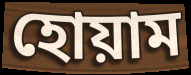
হোয়াম